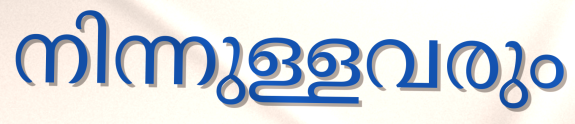
നിന്നുള്ളവരും